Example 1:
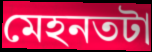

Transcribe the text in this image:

মেহনতটা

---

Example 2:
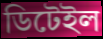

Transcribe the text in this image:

ডিটেইল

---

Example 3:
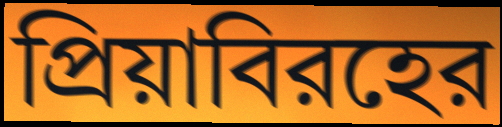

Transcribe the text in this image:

প্রিয়াবিরহের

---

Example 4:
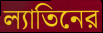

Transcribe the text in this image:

ল্যাতিনের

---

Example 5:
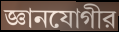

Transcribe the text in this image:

জ্ঞানযোগীর